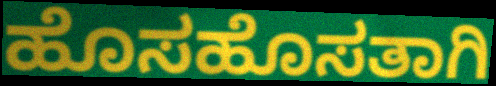
ಹೊಸಹೊಸತಾಗಿ